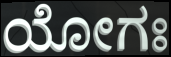
ಯೋಗಃ